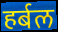
हर्बल